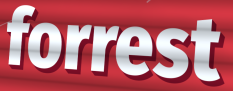
forrest